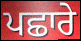
ਪਛਾਰੇ